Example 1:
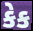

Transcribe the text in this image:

કેક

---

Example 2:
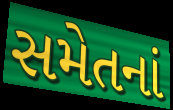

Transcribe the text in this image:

સમેતનાં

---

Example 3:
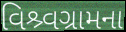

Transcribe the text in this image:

વિશ્ર્વગ્રામના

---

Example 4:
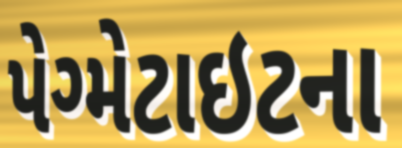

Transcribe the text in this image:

પેગ્મેટાઇટના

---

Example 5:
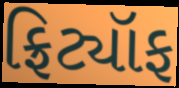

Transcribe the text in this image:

ફ્રિટ્યૉફ